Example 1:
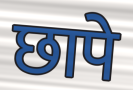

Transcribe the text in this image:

छापे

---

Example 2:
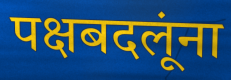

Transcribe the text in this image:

पक्षबदलूंना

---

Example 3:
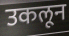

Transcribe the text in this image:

उकलून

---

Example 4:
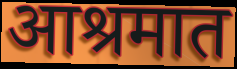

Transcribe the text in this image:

आश्रमात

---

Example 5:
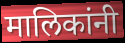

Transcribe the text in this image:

मालिकांनी